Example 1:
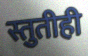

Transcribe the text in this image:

स्तुतीही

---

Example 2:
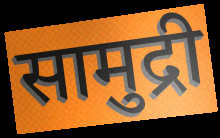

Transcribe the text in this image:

सामुद्री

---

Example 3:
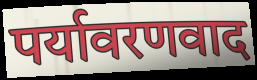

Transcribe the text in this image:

पर्यावरणवाद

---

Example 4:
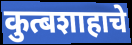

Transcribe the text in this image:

कुत्बशाहाचे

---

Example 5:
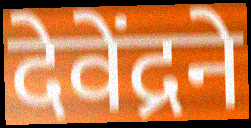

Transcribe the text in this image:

देवेंद्रने